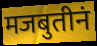
मजबुतीनं